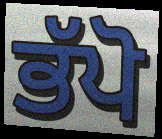
ਭੱਪੋ